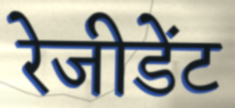
रेजीडेंट